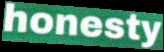
honesty